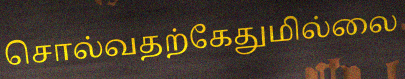
சொல்வதற்கேதுமில்லை